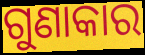
ଗୁଣାକାର